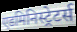
एडमिनिस्ट्रेटर्स